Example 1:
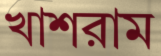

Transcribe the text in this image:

খাশরাম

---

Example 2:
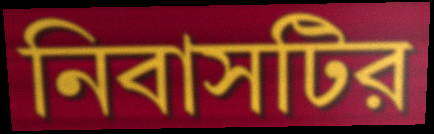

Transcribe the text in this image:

নিবাসটির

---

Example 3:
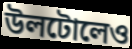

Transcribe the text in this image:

উলটোলেও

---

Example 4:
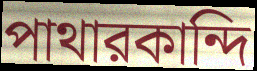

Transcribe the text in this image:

পাথারকান্দি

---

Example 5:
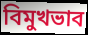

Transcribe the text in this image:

বিমুখভাব